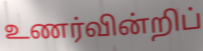
உணர்வின்றிப்